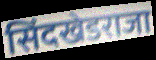
सिंदखेडराजा